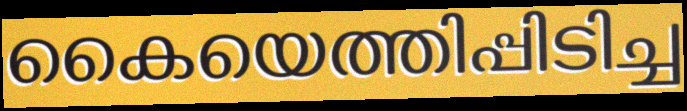
കൈയെത്തിപ്പിടിച്ച